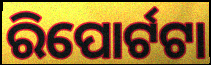
ରିପୋର୍ଟଟା